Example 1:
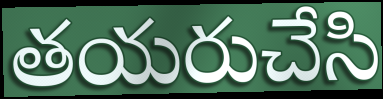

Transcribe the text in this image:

తయరుచేసి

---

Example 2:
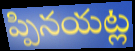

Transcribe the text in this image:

ప్పినయట్ల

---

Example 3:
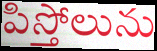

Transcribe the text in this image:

పిస్తోలును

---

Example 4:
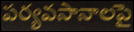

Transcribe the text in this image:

పర్యవసానాలపై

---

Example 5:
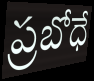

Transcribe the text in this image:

ప్రబోధే